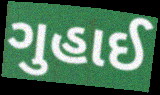
ગુહાઈ